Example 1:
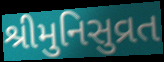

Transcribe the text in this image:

શ્રીમુનિસુવ્રત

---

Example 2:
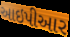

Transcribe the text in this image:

આઇપીઆર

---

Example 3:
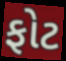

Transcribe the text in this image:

ફોટ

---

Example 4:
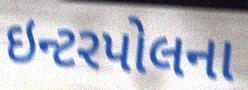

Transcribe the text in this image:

ઇન્ટરપોલના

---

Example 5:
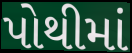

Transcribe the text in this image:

પોથીમાં